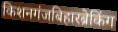
किशनगंजबिहारब्रेकिंग